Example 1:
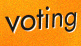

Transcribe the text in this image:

voting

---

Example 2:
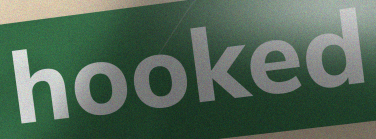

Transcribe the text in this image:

hooked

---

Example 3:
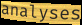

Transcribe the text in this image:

analyses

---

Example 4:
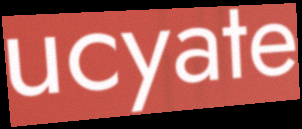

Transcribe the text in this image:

ucyate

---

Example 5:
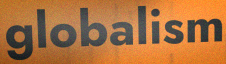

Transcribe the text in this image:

globalism